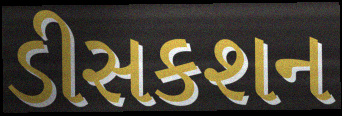
ડીસકશન